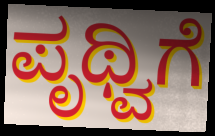
ಪೃಥ್ವಿಗೆ